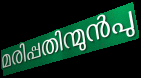
മരിപ്പതിന്മുൻപു